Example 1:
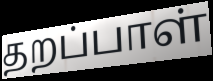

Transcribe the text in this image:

தறப்பாள்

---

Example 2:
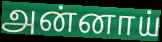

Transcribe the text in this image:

அன்னாய்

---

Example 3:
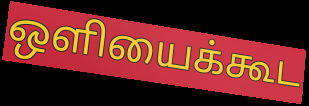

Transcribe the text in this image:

ஒளியைக்கூட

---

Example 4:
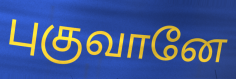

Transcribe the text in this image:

புகுவானே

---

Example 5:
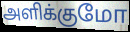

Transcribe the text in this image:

அளிக்குமோ